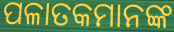
ପଳାତକମାନଙ୍କ